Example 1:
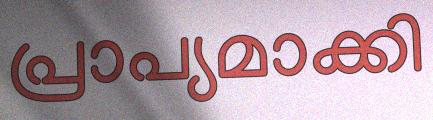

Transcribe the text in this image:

പ്രാപ്യമാക്കി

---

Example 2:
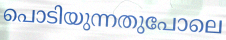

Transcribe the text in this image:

പൊടിയുന്നതുപോലെ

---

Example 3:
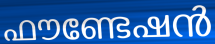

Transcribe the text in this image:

ഫൗണ്ടേഷൻ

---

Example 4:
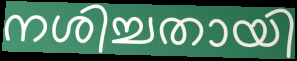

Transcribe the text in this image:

നശിച്ചതായി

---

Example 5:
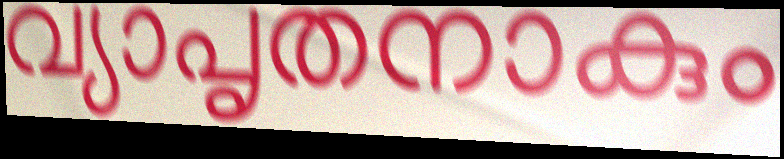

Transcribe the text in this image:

വ്യാപൃതനാകും